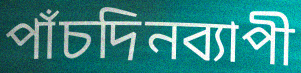
পাঁচদিনব্যাপী